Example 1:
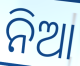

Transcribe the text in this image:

ନିଆ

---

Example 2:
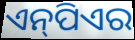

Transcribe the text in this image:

ଏନ୍‌ପିଏର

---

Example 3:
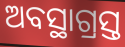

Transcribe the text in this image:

ଅବସ୍ଥାଗ୍ରସ୍ତ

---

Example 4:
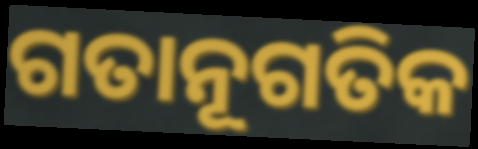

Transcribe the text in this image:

ଗତାନୂଗତିକ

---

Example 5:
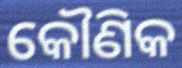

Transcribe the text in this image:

କୌଣିକ